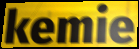
kemie